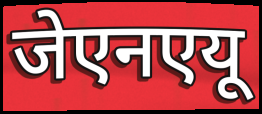
जेएनएयू